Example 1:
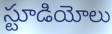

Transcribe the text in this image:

స్టూడియోలు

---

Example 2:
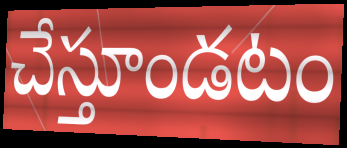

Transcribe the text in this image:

చేస్తూండటం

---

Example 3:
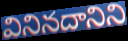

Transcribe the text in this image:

వినినదానిని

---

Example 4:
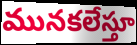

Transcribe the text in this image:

మునకలేస్తూ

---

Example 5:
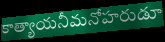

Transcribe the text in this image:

కాత్యాయనీమనోహరుడూ